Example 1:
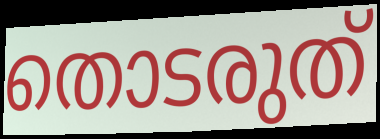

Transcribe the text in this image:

തൊടരുത്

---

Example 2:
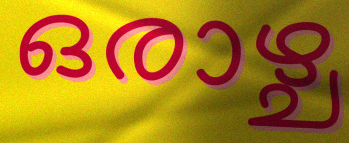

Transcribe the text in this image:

ഒരാഴ്ച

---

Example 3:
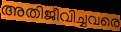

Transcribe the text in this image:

അതിജീവിച്ചവരെ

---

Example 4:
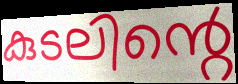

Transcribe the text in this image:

കുടലിന്റെ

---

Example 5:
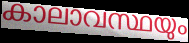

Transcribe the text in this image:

കാലാവസ്ഥയും